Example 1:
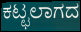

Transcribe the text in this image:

ಕಟ್ಟಲಾಗದ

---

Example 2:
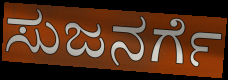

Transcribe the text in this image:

ಸುಜನರ್ಗೆ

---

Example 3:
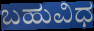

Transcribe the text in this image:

ಬಹುವಿಧ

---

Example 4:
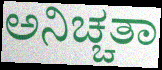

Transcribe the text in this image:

ಅನಿಚ್ಚತಾ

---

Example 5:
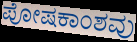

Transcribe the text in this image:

ಪೋಷಕಾಂಶವು